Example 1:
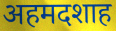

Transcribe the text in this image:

अहमदशाह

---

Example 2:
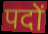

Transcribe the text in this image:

पदों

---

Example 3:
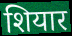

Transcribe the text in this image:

शियार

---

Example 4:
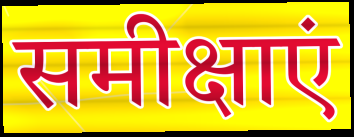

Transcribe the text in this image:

समीक्षाएं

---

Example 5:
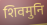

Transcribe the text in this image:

शिवमुनि